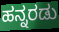
ಹನ್ನರಡು